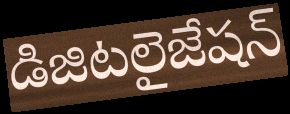
డిజిటలైజేషన్